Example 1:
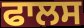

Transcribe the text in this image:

ਫਾਲਸ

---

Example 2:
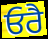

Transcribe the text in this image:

ਓਰੈ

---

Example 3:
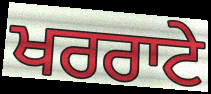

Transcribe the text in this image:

ਖਰਰਾਟੇ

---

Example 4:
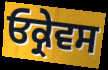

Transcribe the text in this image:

ਓਕ੍ਰੇਵਸ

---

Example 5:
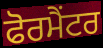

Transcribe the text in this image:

ਫੋਰਮੈਂਟਰ